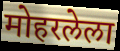
मोहरलेला